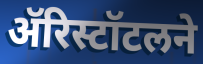
ॲरिस्टॉटलने